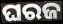
ଘରଜ